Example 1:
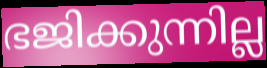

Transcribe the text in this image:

ഭജിക്കുന്നില്ല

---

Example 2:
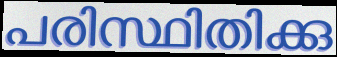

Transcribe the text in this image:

പരിസ്ഥിതിക്കു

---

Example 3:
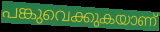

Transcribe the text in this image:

പങ്കുവെക്കുകയാണ്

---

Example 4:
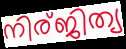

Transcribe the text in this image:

നിര്ജിത്യ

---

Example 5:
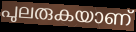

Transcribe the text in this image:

പുലരുകയാണ്